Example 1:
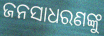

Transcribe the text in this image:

ଜନସାଧରଣଙ୍କୁ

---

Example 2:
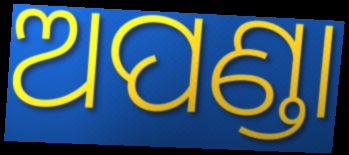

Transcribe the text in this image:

ଅପଣ୍ଡା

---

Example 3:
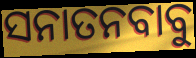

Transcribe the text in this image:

ସନାତନବାବୁ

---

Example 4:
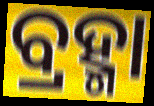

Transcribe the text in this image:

ବ୍ରହ୍ମା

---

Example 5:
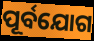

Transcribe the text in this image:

ପୂର୍ବଯୋଗ